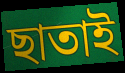
ছাতাই